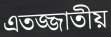
এতজ্জাতীয়